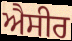
ਐਸੀਰ